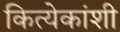
कित्येकांशी